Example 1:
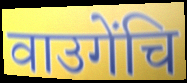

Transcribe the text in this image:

वाउगेंचि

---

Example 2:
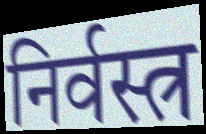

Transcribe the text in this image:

निर्वस्त्र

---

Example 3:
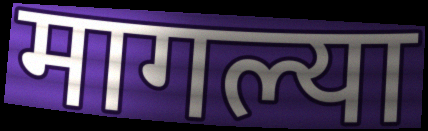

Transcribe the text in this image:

मागल्या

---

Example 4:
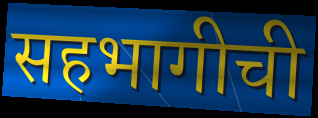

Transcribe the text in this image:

सहभागीची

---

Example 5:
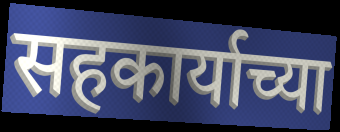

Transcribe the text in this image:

सहकार्याच्या